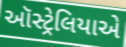
ઑસ્ટ્રેલિયાએ